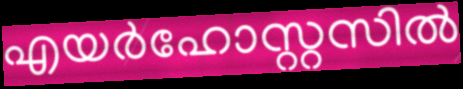
എയർഹോസ്റ്റസിൽ